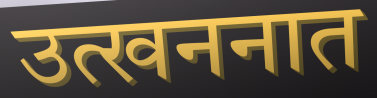
उत्खननात